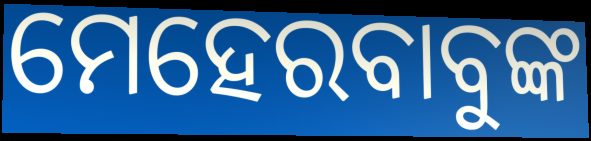
ମେହେରବାବୁଙ୍କ